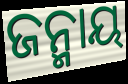
ଜନ୍ମାୟ